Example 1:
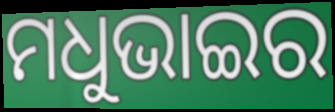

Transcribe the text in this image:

ମଧୁଭାଇର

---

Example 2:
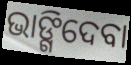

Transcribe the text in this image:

ଭାଙ୍ଗିଦେବା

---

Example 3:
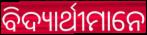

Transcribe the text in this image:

ବିଦ୍ୟାର୍ଥୀମାନେ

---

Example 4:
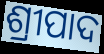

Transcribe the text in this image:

ଶ୍ରୀପାଦ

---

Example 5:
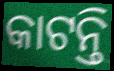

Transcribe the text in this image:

କାଟନ୍ତି